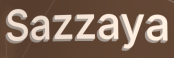
Sazzaya